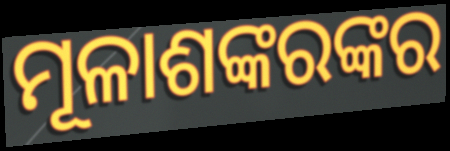
ମୂଳାଶଙ୍କରଙ୍କର